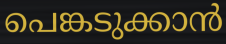
പെങ്കടുക്കാൻ